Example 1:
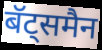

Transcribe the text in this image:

बॅट्समैन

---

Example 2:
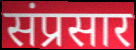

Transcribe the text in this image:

संप्रसार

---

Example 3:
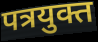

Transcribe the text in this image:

पत्रयुक्त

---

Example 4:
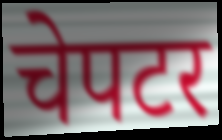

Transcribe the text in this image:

चेपटर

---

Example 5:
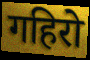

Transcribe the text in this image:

गहिरो